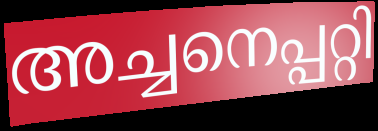
അച്ചനെപ്പറ്റി